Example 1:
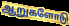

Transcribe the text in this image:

ஆறுகளோடு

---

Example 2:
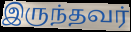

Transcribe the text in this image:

இருந்தவர்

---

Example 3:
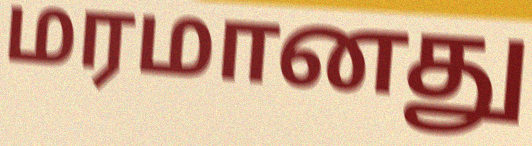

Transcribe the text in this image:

மரமானது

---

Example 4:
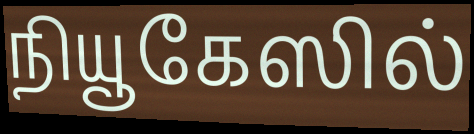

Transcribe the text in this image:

நியூகேஸில்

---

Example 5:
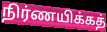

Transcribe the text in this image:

நிர்ணயிக்கத்